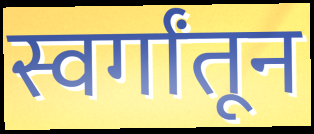
स्वर्गांतून